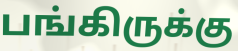
பங்கிருக்கு